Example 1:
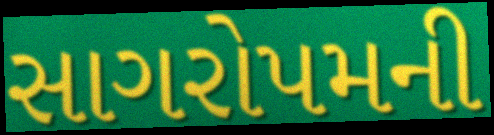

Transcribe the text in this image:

સાગરોપમની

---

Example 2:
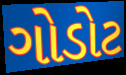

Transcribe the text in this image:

ગોડોટ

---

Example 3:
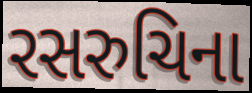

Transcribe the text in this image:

રસરુચિના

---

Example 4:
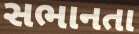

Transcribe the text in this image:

સભાનતા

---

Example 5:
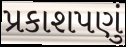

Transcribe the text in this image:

પ્રકાશપણું